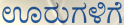
ಊರುಗಳಿಗೆ